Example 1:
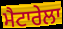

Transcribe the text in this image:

ਮੈਟਾਰੇਲਾ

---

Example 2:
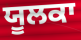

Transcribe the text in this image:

ਯੂਲਕਾ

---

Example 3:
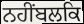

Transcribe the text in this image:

ਨਹੀਂਬਲਕਿ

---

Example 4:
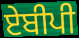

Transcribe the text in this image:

ਏਬੀਪੀ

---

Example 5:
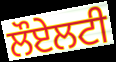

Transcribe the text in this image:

ਲੌਏਲਟੀ